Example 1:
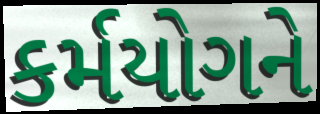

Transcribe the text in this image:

કર્મયોગને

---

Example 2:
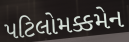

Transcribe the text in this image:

પટિલોમક્કમેન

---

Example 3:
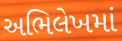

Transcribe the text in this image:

અભિલેખમાં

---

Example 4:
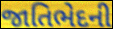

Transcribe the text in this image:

જાતિભેદની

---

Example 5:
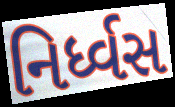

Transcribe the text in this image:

નિર્ધ્વસ